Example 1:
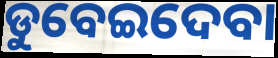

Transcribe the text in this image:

ଡୁବେଇଦେବା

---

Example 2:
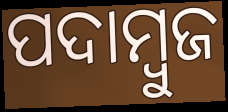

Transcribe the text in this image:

ପଦାମ୍ବୁଜ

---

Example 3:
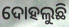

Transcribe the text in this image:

ଦୋହଲୁଛି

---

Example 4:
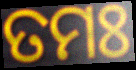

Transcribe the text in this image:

ତମଃ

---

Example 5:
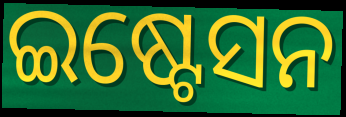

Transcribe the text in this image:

ଇଷ୍ଟେସନ